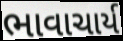
ભાવાચાર્ય